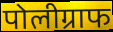
पोलीग्राफ